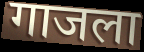
गाजला